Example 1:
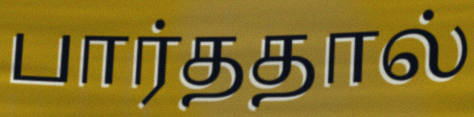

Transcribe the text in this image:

பார்ததால்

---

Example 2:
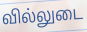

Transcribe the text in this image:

வில்லுடை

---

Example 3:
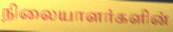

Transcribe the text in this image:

நிலையாளர்களின்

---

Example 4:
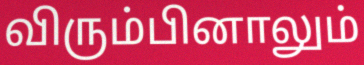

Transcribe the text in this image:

விரும்பினாலும்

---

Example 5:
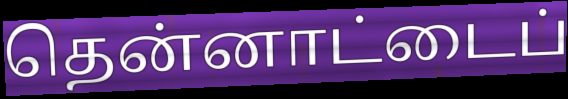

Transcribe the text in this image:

தென்னாட்டைப்